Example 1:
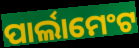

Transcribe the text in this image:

ପାର୍ଲାମେଂଟ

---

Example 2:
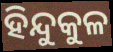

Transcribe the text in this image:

ହିନ୍ଦୁକୁଳ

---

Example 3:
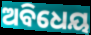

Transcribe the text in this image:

ଅବିଧେୟ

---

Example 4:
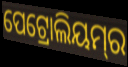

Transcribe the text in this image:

ପେଟ୍ରୋଲିୟମ୍‌ର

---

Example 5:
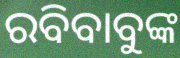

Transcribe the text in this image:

ରବିବାବୁଙ୍କ